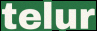
telur